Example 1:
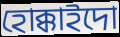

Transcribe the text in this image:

হোক্কাইদো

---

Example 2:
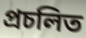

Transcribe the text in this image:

প্রচলিত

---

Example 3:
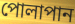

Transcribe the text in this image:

পোলাপান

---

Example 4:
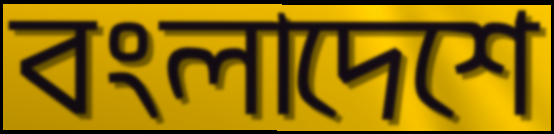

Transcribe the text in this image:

বংলাদেশে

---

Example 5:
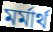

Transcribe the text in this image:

মর্মার্থ